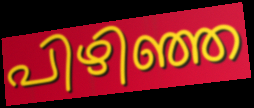
പിഴിഞ്ഞ